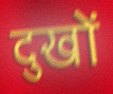
दुखों